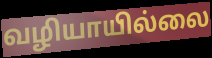
வழியாயில்லை